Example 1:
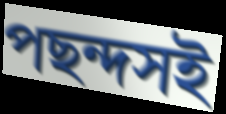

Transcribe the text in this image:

পছন্দসই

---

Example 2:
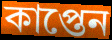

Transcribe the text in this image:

কাপ্তেন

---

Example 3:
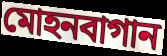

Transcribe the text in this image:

মোহনবাগান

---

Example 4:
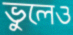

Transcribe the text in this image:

ভুলেও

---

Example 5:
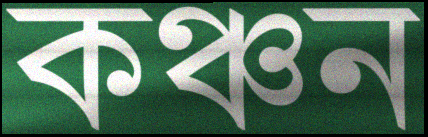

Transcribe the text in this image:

কঞ্চন